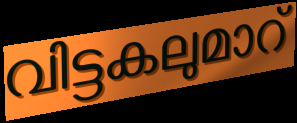
വിട്ടകലുമാറ്